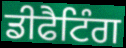
ਡੀਫੈਟਿੰਗ